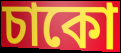
চাকো